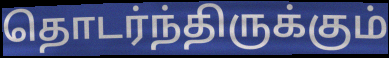
தொடர்ந்திருக்கும்